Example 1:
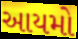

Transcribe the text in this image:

આયમો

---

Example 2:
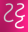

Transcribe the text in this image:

ટટ્ટ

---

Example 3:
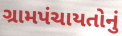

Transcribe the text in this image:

ગ્રામપંચાયતોનું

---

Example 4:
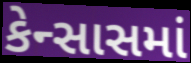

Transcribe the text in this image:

કેન્સાસમાં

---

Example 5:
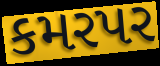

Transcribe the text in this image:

કમરપર